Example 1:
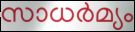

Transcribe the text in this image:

സാധർമ്യം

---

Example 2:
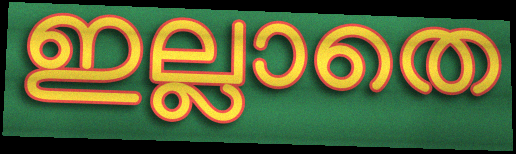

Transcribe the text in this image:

ഇല്ലാതെ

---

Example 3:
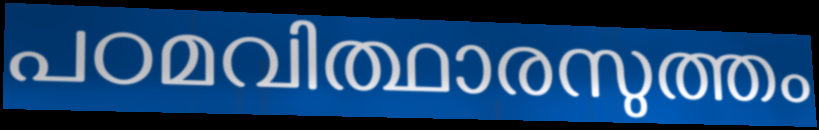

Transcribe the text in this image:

പഠമവിത്ഥാരസുത്തം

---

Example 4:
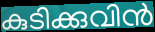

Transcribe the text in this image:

കുടിക്കുവിൻ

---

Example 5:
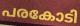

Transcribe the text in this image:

പരകോടി